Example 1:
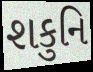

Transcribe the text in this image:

શકુનિ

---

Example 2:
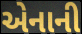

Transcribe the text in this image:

એનાની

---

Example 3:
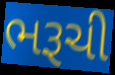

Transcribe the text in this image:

ભરૂચી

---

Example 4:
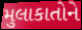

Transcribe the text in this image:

મુલાકાતોને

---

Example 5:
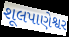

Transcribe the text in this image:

શૂલપાણેશ્વર